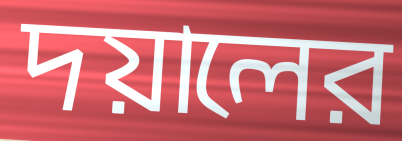
দয়ালের